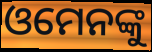
ଓମେନଙ୍କୁ